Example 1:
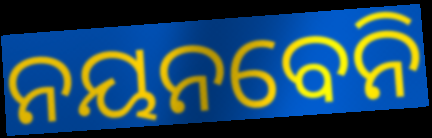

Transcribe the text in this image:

ନୟନବେନି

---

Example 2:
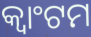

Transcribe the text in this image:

କ୍ୱାଂଟମ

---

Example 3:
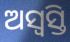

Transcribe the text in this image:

ଅସ୍ୱସ୍ତି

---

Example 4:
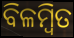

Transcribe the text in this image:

ବିଳମ୍ବିତ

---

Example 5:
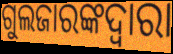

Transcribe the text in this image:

ଗୁଲଜାରଙ୍କଦ୍ୱାରା